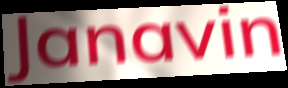
Janavin